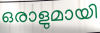
ഒരാളുമായി